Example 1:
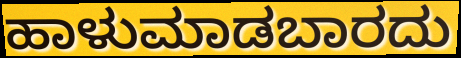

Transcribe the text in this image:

ಹಾಳುಮಾಡಬಾರದು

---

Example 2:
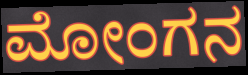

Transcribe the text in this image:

ಮೋಂಗನ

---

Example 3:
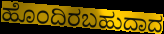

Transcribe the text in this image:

ಹೊಂದಿರಬಹುದಾದ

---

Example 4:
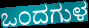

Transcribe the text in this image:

ಒಂದಗುಳ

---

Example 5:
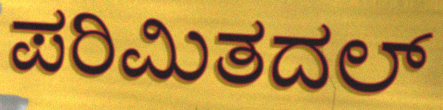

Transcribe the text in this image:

ಪರಿಮಿತದಲ್